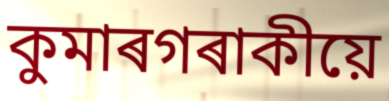
কুমাৰগৰাকীয়ে